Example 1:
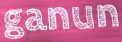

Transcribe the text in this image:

ganun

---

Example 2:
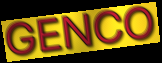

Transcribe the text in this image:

GENCO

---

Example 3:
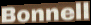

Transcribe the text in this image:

Bonnell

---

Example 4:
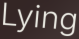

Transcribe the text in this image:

Lying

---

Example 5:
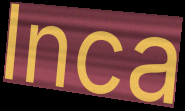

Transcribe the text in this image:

Inca